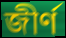
জীৰ্ণ